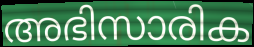
അഭിസാരിക